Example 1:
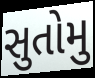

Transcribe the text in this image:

સુતોમુ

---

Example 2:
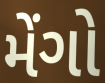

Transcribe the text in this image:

મેંગો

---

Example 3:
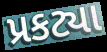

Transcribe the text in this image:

પ્રકટ્યા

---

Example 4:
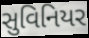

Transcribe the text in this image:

સુવિનિયર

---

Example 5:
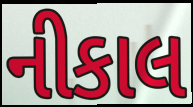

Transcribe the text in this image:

નીકાલ